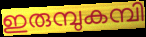
ഇരുമ്പുകമ്പി